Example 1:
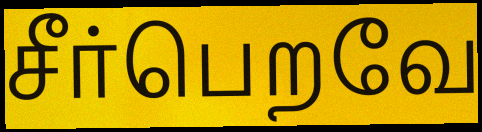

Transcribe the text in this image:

சீர்பெறவே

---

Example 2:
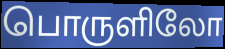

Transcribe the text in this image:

பொருளிலோ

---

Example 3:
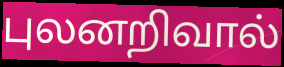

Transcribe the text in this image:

புலனறிவால்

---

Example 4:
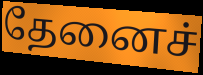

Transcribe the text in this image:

தேனைச்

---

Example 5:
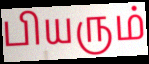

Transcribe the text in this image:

பியரும்